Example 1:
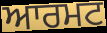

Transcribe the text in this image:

ਆਰਮਟ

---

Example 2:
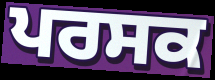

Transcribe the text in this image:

ਪਰਸਕ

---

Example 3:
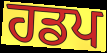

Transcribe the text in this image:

ਹਡਪ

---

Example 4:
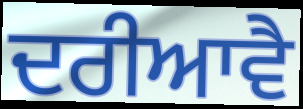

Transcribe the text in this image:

ਦਰੀਆਵੈ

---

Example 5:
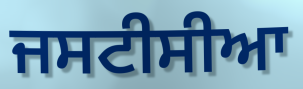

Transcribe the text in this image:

ਜਸਟੀਸੀਆ